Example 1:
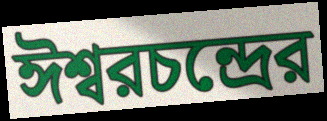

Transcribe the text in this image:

ঈশ্বরচন্দ্রের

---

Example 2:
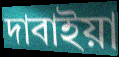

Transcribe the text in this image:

দাবাইয়া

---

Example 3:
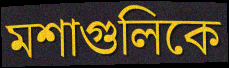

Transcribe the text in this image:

মশাগুলিকে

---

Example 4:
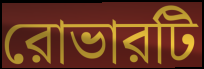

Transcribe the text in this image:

রোভারটি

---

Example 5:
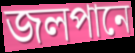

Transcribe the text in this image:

জলপানে